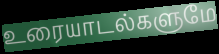
உரையாடல்களுமே